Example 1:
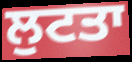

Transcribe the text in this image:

ਲੁਟਤਾ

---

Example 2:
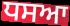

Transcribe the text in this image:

ਧਸਆ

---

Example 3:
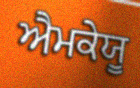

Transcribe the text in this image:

ਐਮਕੇਯੂ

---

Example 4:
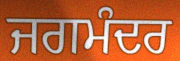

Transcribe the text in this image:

ਜਗਮੰਦਰ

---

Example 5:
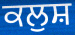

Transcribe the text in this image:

ਕਲੁਸ਼